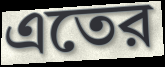
এতের